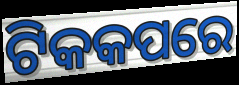
ଟିକକପରେ